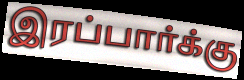
இரப்பார்க்கு